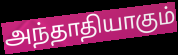
அந்தாதியாகும்